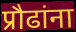
प्रौढांना